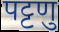
पट्टणु